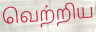
வெற்றிய